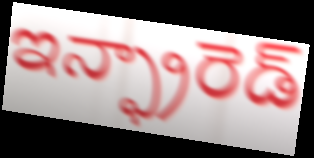
ఇన్ఫ్రారెడ్